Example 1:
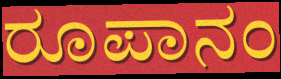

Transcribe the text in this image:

ರೂಪಾನಂ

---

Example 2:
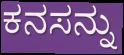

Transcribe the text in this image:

ಕನಸನ್ನು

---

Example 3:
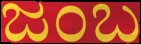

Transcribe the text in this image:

ಜಂಬ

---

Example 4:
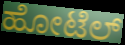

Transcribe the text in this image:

ಹೋಟೆಲ್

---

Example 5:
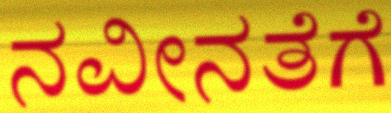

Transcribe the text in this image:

ನವೀನತೆಗೆ